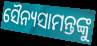
ସୈନ୍ୟସାମନ୍ତଙ୍କୁ